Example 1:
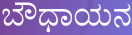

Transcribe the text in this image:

ಬೌಧಾಯನ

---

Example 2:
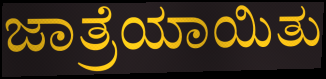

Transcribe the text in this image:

ಜಾತ್ರೆಯಾಯಿತು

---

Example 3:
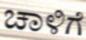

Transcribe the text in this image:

ಚಾಳಿಗೆ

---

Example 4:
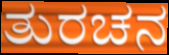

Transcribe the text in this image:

ತುರಚನ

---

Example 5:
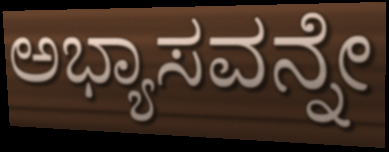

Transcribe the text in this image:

ಅಭ್ಯಾಸವನ್ನೇ